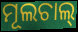
ମୂଲଚାଲ୍